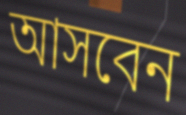
আসবেন